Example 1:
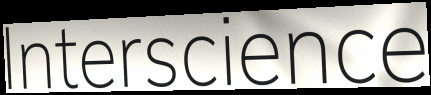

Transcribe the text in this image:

Interscience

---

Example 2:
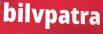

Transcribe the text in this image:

bilvpatra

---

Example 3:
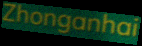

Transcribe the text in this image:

Zhonganhai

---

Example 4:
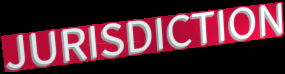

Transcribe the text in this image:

JURISDICTION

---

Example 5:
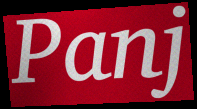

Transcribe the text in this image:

Panj